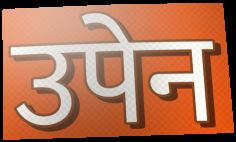
उपेन